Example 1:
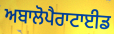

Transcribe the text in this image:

ਅਬਾਲੋਪੈਰਾਟਾਈਡ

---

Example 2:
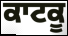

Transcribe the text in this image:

ਕਾਟਕੂ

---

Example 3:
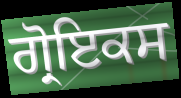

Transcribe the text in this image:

ਗ੍ਰੋਇਕਸ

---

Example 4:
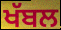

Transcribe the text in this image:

ਖੱਬਲ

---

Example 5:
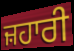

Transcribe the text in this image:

ਜ਼ਹਾਰੀ